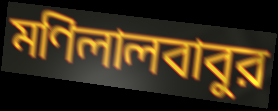
মণিলালবাবুর